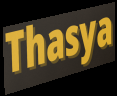
Thasya